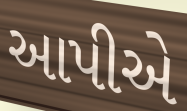
આપીએ